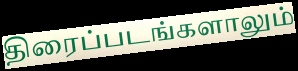
திரைப்படங்களாலும்